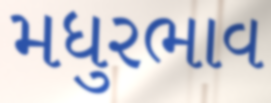
મધુરભાવ